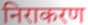
निराकरण